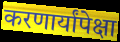
करणार्यांपेक्षा